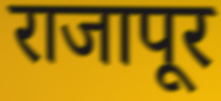
राजापूर